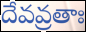
దేవవ్రతాః